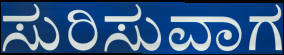
ಸುರಿಸುವಾಗ